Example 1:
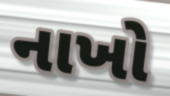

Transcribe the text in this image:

નાખો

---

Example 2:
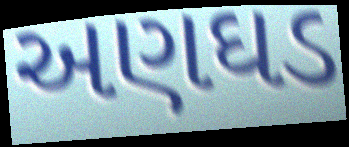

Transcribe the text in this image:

અણઘડ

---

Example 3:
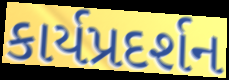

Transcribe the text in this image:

કાર્યપ્રદર્શન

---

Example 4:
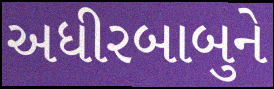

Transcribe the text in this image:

અધીરબાબુને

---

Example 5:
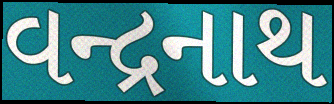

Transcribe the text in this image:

વન્દ્રનાથ